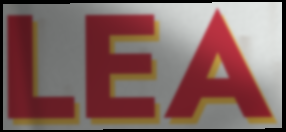
LEA